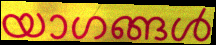
യാഗങ്ങൾ